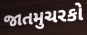
જાતમુચરકો